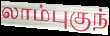
லாம்புகுந்